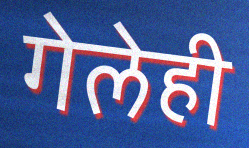
गेलेही